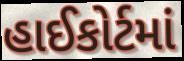
હાઈકોર્ટમાં